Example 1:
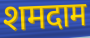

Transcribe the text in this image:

शमदाम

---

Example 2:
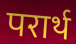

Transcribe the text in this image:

परार्थ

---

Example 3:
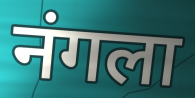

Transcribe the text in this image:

नंगला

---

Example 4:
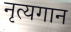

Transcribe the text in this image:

नृत्यगान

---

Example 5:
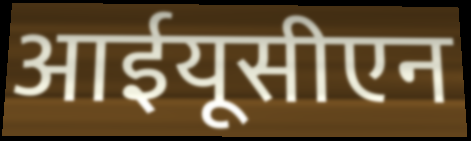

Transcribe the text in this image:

आईयूसीएन